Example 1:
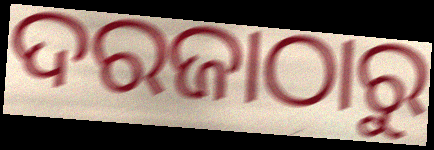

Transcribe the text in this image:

ଦରଜାଠାରୁ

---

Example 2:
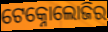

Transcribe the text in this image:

ଟେକ୍ନୋଲୋଜିର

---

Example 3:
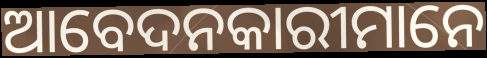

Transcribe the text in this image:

ଆବେଦନକାରୀମାନେ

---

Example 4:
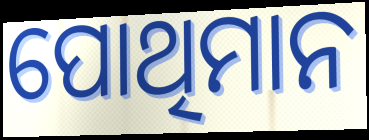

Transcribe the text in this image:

ପୋଥିମାନ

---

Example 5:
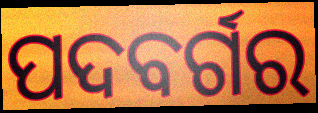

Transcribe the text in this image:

ପଦବର୍ଗର